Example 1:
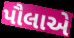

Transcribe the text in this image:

પૌલાએ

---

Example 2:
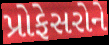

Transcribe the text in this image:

પ્રોફેસરોને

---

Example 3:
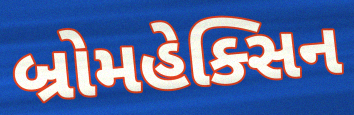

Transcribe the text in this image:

બ્રોમહેક્સિન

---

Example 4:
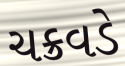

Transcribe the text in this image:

ચક્રવડે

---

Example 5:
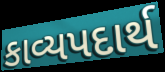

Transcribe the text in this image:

કાવ્યપદાર્થ